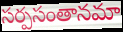
సర్పసంతానమా